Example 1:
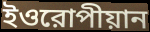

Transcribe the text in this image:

ইওরোপীয়ান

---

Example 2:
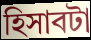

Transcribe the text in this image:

হিসাবটা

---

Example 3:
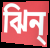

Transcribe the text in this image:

ঝিন্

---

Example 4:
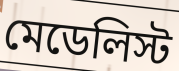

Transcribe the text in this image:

মেডেলিস্ট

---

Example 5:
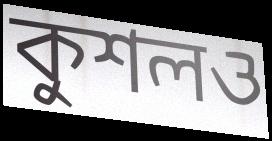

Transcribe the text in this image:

কুশলও